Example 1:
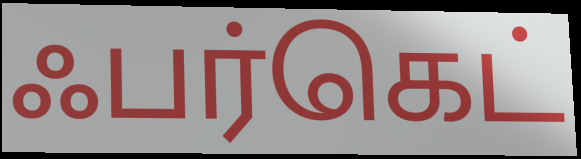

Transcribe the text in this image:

ஃபர்கெட்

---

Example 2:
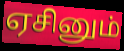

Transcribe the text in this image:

ஏசினும்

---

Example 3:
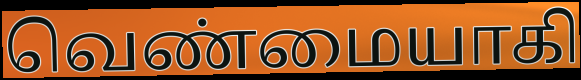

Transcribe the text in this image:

வெண்மையாகி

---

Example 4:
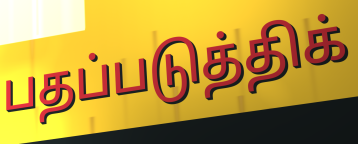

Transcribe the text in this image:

பதப்படுத்திக்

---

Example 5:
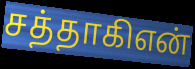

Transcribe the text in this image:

சத்தாகிஎன்